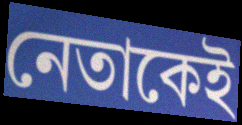
নেতাকেই